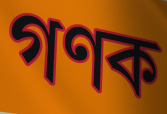
গণক